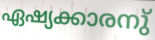
ഏഷ്യക്കാരനു്